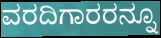
ವರದಿಗಾರರನ್ನೂ